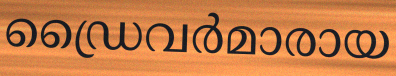
ഡ്രൈവർമാരായ